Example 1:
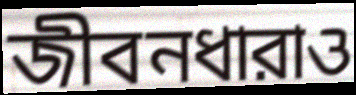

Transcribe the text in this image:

জীবনধারাও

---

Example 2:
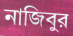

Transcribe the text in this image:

নাজিবুর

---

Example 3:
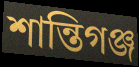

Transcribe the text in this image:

শান্তিগঞ্জ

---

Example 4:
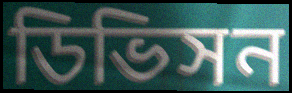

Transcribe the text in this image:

ডিভিসন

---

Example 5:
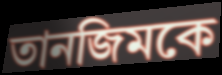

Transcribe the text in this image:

তানজিমকে